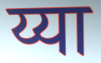
य्या